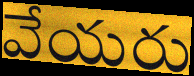
వేయరు